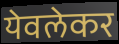
येवलेकर